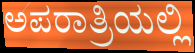
ಅಪರಾತ್ರಿಯಲ್ಲಿ